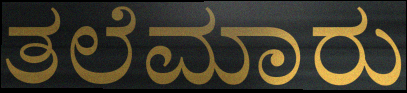
ತಲೆಮಾರು